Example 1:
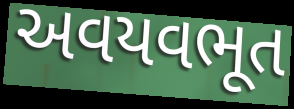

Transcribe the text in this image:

અવયવભૂત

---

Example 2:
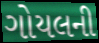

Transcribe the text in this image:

ગોયલની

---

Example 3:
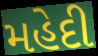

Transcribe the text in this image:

મહેદી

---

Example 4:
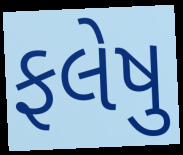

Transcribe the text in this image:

ફલેષુ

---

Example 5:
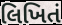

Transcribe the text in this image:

લિખિતં